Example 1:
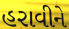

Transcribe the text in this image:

હરાવીને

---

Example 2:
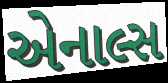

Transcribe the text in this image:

એનાલ્સ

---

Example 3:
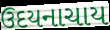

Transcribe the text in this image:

ઉદયનાચાય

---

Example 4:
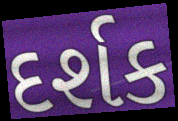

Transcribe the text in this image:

દર્શક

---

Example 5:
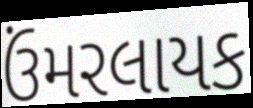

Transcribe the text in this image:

ઉંમરલાયક